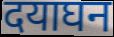
दयाघन